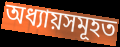
অধ্যায়সমূহত